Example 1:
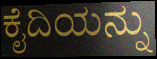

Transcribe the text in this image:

ಕೈದಿಯನ್ನು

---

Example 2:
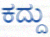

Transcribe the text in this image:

ಕದ್ದು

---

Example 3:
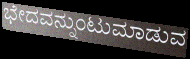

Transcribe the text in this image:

ಭೇದವನ್ನುಂಟುಮಾಡುವ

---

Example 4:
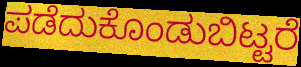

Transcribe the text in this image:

ಪಡೆದುಕೊಂಡುಬಿಟ್ಟರೆ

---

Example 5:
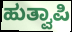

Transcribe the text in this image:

ಹುತ್ವಾಪಿ